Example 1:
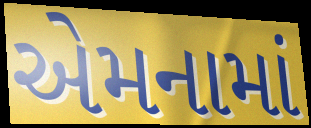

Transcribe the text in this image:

એમનામાં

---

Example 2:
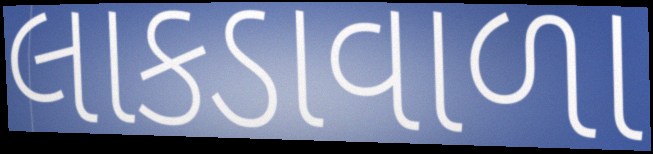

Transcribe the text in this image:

લાકડાવાળા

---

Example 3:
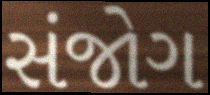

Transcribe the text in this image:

સંજોગ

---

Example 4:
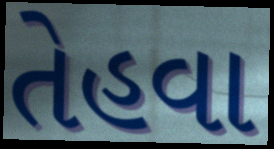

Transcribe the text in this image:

તેહવા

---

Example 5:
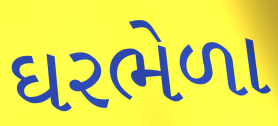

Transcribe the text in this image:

ઘરભેળા